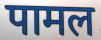
पामल